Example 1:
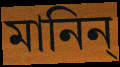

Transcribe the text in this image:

মানিন্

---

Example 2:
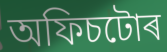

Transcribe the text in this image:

অফিচটোৰ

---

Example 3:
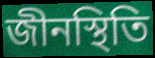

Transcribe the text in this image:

জীনস্থিতি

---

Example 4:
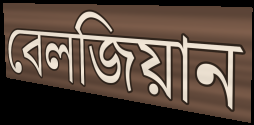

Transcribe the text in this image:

বেলজিয়ান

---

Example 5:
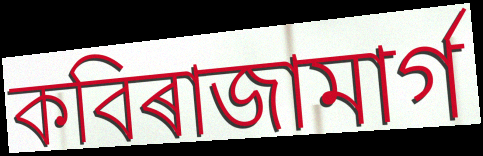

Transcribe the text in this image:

কবিৰাজামাৰ্গ